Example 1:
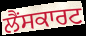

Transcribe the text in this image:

ਲੈਂਸਕਾਰਟ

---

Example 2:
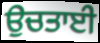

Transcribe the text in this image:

ਉਚਤਾਈ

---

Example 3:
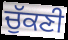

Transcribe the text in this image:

ਚੁੱਕਣੀ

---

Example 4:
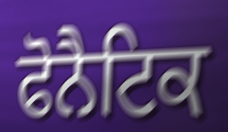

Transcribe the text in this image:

ਫੋਨੈਟਿਕ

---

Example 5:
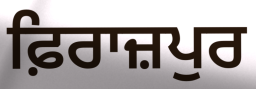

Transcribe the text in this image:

ਫ਼ਿਰਾਜ਼ਪੁਰ